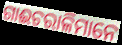
ଗାଈଚରାଳିମାନେ